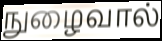
நுழைவால்